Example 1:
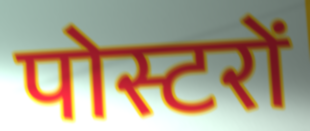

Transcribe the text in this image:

पोस्‍टरों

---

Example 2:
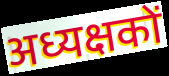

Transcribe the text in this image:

अध्यक्षकों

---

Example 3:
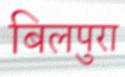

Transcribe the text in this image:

बिलपुरा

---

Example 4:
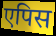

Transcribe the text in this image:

एपिस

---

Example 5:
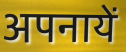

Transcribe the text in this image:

अपनायें